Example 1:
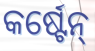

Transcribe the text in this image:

କର୍ଷ୍ଟେନ୍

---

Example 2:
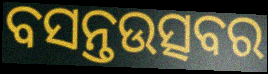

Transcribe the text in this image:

ବସନ୍ତଉତ୍ସବର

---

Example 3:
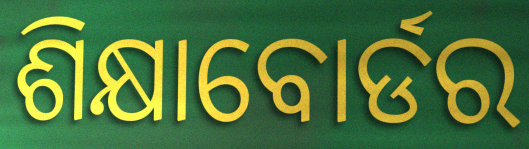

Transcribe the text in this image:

ଶିକ୍ଷାବୋର୍ଡର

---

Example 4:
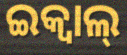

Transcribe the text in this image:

ଇକ୍ବାଲ୍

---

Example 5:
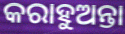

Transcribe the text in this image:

କରାହୁଅନ୍ତା